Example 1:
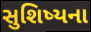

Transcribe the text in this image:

સુશિષ્યના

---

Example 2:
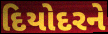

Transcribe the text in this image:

દિયોદરને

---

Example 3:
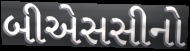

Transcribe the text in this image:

બીએસસીનો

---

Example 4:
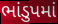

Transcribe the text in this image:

ભાંડુપમાં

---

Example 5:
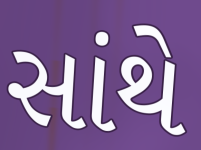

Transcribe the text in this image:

સાંથે